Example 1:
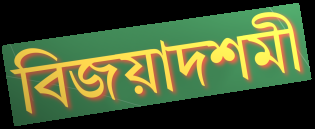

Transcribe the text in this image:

বিজয়াদশমী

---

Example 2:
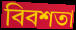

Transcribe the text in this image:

বিবশতা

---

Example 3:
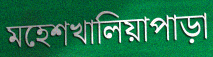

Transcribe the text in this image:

মহেশখালিয়াপাড়া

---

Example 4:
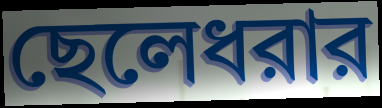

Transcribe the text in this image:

ছেলেধরার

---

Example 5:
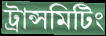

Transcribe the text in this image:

ট্রান্সমিটিং